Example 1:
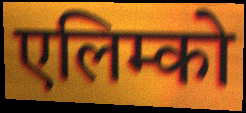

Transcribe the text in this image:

एलिम्को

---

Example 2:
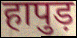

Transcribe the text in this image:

हापुड़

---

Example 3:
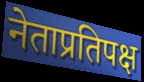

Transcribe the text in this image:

नेताप्रतिपक्ष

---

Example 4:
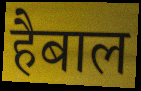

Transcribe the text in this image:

हैबाल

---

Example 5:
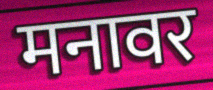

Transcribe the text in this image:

मनावर